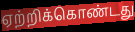
ஏற்றிக்கொண்டது